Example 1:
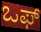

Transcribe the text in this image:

ಒಫ್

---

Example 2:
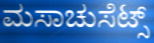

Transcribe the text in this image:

ಮಸಾಚುಸೆಟ್ಸ್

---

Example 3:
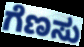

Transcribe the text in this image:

ಗೆಣಸು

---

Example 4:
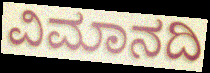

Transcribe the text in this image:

ವಿಮಾನದಿ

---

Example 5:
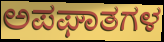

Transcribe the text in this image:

ಅಪಘಾತಗಳ